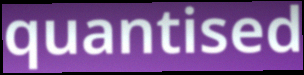
quantised